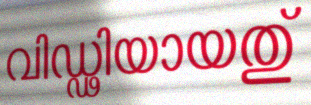
വിഡ്ഢിയായതു്